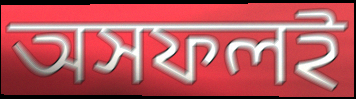
অসফলই